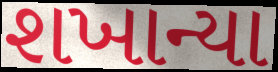
શખાન્યા